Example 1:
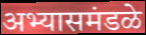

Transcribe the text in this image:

अभ्यासमंडळे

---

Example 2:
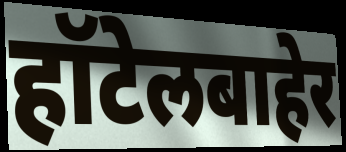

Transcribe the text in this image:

हॉटेलबाहेर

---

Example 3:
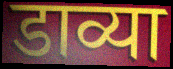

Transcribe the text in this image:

डाव्या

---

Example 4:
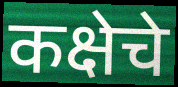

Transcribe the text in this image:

कक्षेचे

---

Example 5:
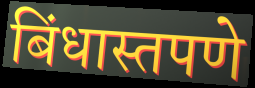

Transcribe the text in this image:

बिंधास्तपणे